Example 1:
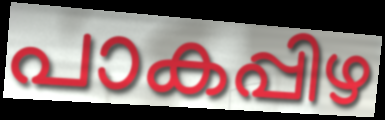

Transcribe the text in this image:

പാകപ്പിഴ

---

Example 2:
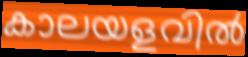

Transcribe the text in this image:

കാലയളവിൽ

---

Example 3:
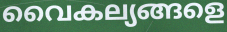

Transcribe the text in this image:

വൈകല്യങ്ങളെ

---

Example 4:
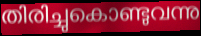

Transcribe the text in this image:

തിരിച്ചുകൊണ്ടുവന്നു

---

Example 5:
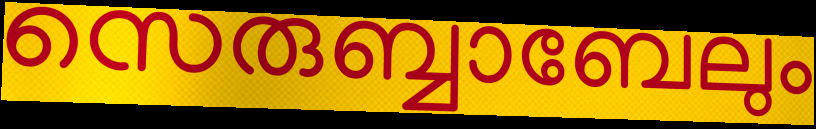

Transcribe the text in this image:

സെരുബ്ബാബേലും